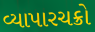
વ્યાપારચક્રો